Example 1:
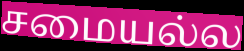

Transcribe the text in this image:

சமையல்ல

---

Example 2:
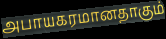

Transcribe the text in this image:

அபாயகரமானதாகும்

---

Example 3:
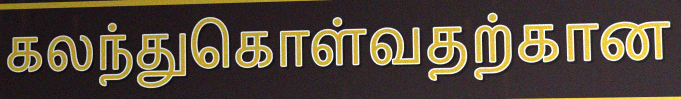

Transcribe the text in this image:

கலந்துகொள்வதற்கான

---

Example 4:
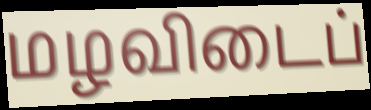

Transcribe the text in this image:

மழவிடைப்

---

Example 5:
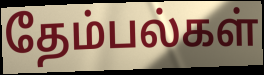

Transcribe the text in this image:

தேம்பல்கள்